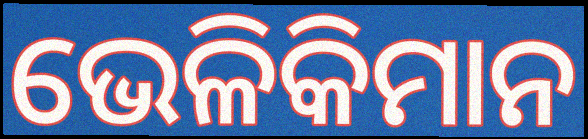
ଭେଳିକିମାନ